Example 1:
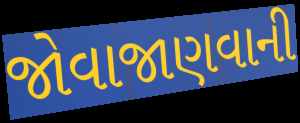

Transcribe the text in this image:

જોવાજાણવાની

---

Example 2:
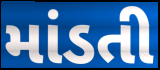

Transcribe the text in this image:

માંડતી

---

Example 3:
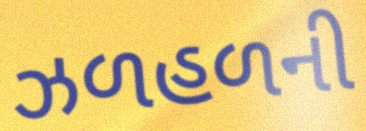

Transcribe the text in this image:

ઝળહળની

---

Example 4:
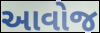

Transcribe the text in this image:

આવોજ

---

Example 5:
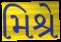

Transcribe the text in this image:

મિશ્રે